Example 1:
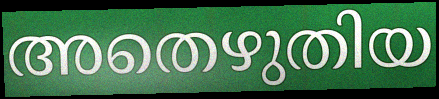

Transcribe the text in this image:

അതെഴുതിയ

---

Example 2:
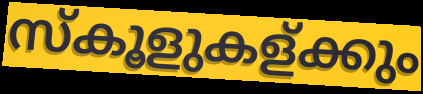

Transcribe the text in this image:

സ്കൂളുകള്ക്കും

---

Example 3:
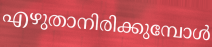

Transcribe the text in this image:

എഴുതാനിരിക്കുമ്പോൾ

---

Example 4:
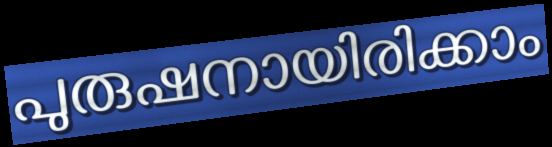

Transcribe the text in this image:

പുരുഷനായിരിക്കാം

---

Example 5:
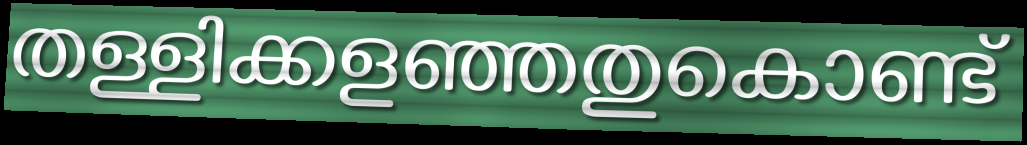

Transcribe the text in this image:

തള്ളിക്കളഞ്ഞതുകൊണ്ട്